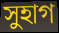
সুহাগ